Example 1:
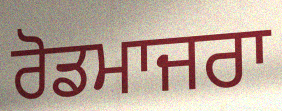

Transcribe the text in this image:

ਰੋਡਮਾਜਰਾ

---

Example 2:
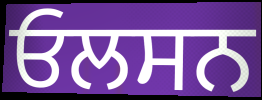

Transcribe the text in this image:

ਓਲਸਨ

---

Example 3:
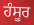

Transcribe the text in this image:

ਹੰਸੂਰ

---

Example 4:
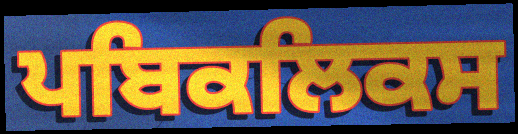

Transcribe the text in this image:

ਪਬਿਕਲਿਕਸ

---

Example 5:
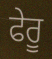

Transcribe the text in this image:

ਫੇਰੂ